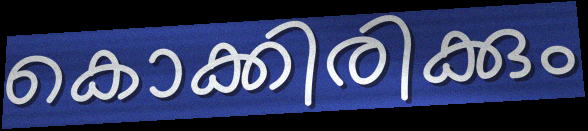
കൊക്കിരിക്കും